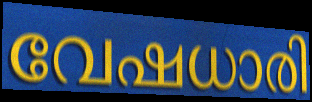
വേഷധാരി